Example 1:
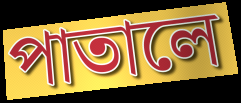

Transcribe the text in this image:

পাতালে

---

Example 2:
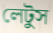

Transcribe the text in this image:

লেটুস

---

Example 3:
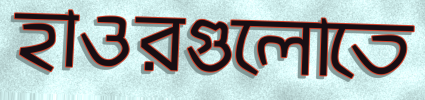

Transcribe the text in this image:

হাওরগুলোতে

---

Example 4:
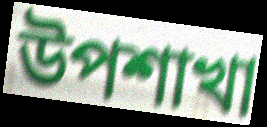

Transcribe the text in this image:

উপশাখা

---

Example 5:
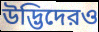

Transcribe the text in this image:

উদ্ভিদেরও